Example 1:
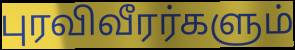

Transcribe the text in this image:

புரவிவீரர்களும்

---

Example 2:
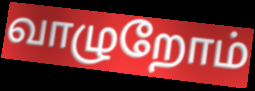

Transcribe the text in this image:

வாழுறோம்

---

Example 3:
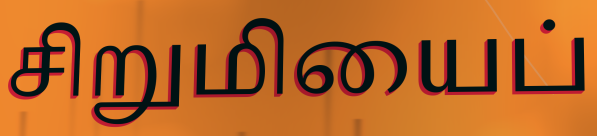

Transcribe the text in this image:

சிறுமியைப்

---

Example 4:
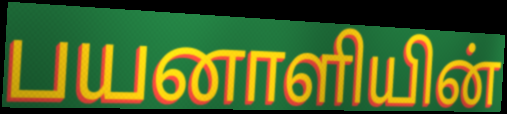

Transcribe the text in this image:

பயனாளியின்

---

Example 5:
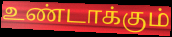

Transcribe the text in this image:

உண்டாக்கும்